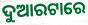
ଦୁଆରଟାରେ